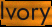
Ivory